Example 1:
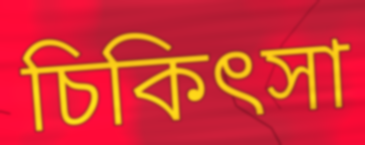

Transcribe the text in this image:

চিকিৎসা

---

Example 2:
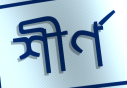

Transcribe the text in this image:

শীর্ণ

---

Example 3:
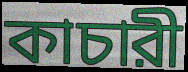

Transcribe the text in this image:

কাচারী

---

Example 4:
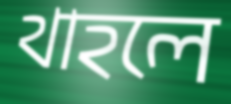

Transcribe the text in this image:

থাহলে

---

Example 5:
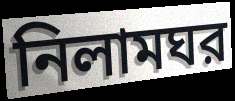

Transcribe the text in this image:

নিলামঘর